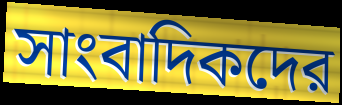
সাংবাদিকদের